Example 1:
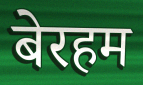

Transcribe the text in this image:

बेरहम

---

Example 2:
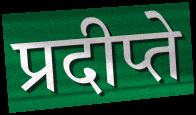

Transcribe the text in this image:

प्रदीप्ते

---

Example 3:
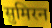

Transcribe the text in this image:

सुमिरन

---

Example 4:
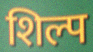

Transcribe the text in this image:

शिल्‍प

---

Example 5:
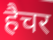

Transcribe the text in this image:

हैचर